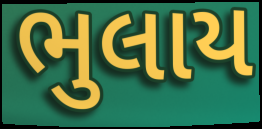
ભુલાય